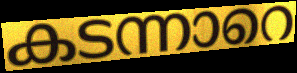
കടന്നാറെ